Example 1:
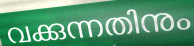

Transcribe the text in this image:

വക്കുന്നതിനും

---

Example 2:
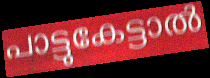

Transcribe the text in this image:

പാട്ടുകേട്ടാൽ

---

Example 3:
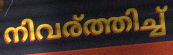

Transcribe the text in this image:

നിവര്ത്തിച്ച്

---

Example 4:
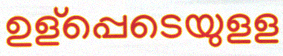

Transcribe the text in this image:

ഉള്പ്പെടെയുളള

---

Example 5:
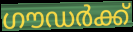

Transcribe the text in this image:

ഗൗഡർക്ക്